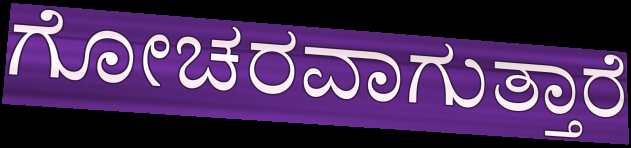
ಗೋಚರವಾಗುತ್ತಾರೆ